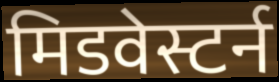
मिडवेस्टर्न